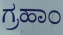
ಗ್ರಹಾಂ